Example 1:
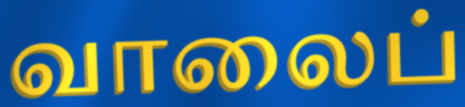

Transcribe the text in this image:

வாலைப்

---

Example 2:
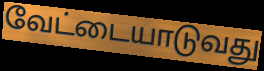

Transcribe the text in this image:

வேட்டையாடுவது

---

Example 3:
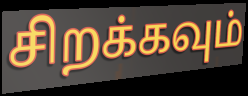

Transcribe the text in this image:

சிறக்கவும்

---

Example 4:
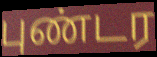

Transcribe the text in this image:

புண்டர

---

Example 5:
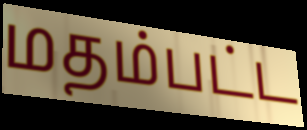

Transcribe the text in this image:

மதம்பட்ட